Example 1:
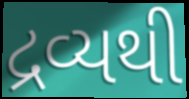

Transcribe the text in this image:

દ્રવ્યથી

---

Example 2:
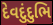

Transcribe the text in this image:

દેવદુંદુભિ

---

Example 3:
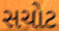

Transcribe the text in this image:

સચોટ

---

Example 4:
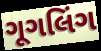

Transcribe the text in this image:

ગૂગલિંગ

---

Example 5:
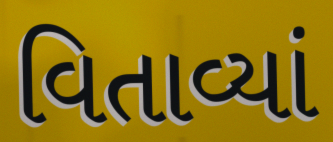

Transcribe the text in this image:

વિતાવ્યાં